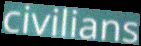
civilians